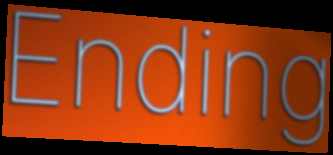
Ending